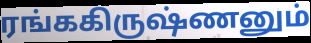
ரங்ககிருஷ்ணனும்